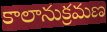
కాలానుక్రమణ